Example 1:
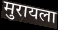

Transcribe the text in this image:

मुरायला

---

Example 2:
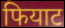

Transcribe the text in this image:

फियाट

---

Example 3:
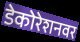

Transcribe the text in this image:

डेकोरेशनवर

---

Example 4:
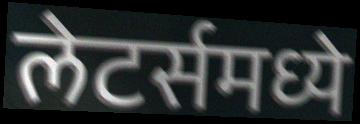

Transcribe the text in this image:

लेटर्समध्ये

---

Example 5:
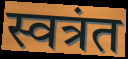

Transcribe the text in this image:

स्वत्रंत